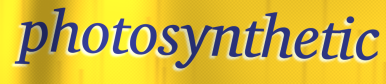
photosynthetic